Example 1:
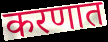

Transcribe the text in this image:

करणात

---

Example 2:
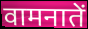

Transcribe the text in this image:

वामनातें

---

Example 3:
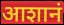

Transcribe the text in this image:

आशानं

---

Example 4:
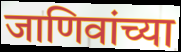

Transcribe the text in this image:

जाणिवांच्या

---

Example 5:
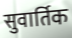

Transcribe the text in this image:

सुवार्तिक